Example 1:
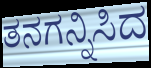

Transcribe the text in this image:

ತನಗನ್ನಿಸಿದ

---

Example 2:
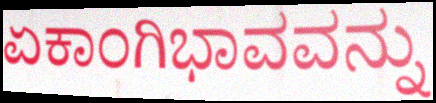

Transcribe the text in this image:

ಏಕಾಂಗಿಭಾವವನ್ನು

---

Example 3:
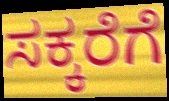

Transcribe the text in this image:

ಸಕ್ಕರೆಗೆ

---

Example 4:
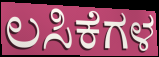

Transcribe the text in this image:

ಲಸಿಕೆಗಳ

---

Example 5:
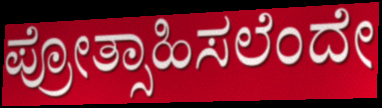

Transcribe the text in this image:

ಪ್ರೋತ್ಸಾಹಿಸಲೆಂದೇ